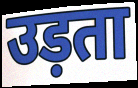
उड़ता